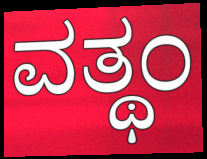
ವತ್ಥಂ